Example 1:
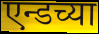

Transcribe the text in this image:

एन्डच्या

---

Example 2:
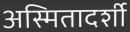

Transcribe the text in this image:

अस्मितादर्शी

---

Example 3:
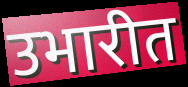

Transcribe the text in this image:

उभारीत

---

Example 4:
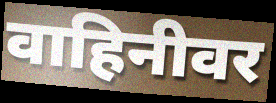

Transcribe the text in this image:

वाहिनीवर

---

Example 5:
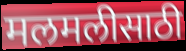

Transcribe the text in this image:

मलमलीसाठी